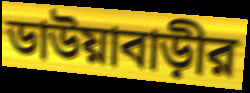
ডাউয়াবাড়ীর